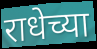
राधेच्या